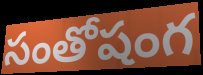
సంతోషంగ